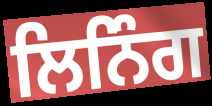
ਲਿਨਿੰਗ